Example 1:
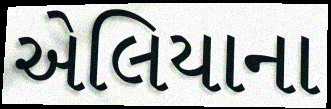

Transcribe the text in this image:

એલિયાના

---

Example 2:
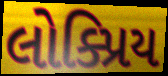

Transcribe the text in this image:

લોક્પ્રિય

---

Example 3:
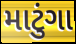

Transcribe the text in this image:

માટુંગા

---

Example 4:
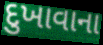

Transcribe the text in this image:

દુખાવાના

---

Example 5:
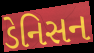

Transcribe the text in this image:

ડેનિસન